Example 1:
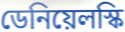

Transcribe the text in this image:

ডেনিয়েলস্কি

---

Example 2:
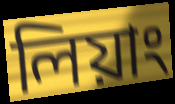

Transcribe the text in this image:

লিয়াং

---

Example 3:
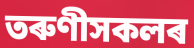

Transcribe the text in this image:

তৰুণীসকলৰ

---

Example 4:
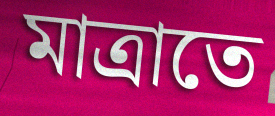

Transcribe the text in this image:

মাত্ৰাতে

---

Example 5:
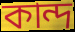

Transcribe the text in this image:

কান্দ